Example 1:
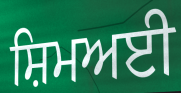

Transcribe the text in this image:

ਸ਼ਿਮਅਈ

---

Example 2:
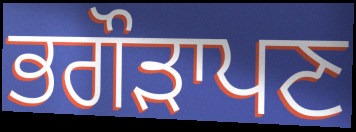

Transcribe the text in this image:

ਭਗੌੜਾਪਣ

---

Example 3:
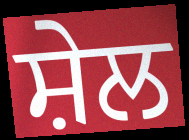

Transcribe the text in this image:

ਸ਼ੇਲ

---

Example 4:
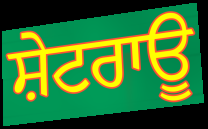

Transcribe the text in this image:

ਸ਼ੇਟਰਾਊ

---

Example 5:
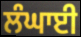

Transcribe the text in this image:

ਲੰਘਾਈ